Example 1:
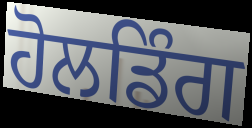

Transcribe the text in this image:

ਹੋਲਡਿੰਗ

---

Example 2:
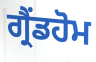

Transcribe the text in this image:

ਗ੍ਰੈਂਡਹੋਮ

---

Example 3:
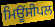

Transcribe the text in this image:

ਮਿਊਂਸੀਪਲ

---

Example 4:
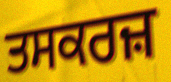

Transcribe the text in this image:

ਤਸਕਰਜ਼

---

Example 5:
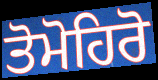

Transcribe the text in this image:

ਤੋਮੋਹਿਰੋ